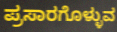
ಪ್ರಸಾರಗೊಳ್ಳುವ